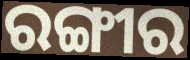
ରଙ୍ଗୀର